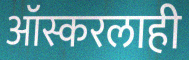
ऑस्करलाही